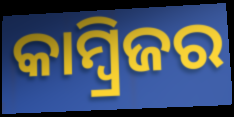
କାମ୍ବ୍ରିଜର